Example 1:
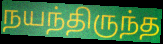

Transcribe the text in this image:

நயந்திருந்த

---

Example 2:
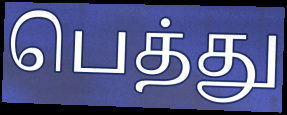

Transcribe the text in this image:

பெத்து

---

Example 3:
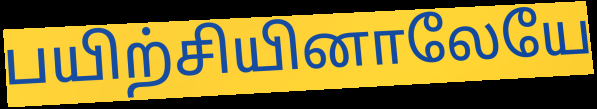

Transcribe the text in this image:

பயிற்சியினாலேயே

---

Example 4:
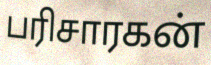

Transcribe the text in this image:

பரிசாரகன்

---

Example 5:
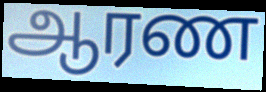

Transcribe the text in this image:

ஆரண